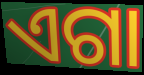
ଏଗା